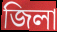
জিলা